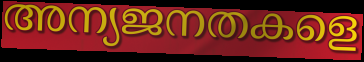
അന്യജനതകളെ